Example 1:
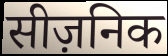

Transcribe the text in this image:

सीज़निक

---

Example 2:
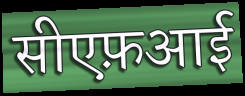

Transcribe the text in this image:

सीएफ़आई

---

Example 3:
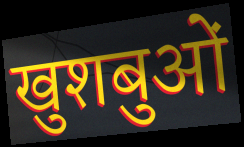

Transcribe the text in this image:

खुशबुओं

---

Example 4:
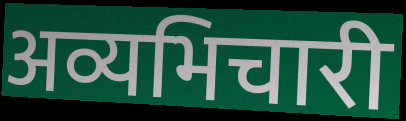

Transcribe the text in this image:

अव्यभिचारी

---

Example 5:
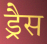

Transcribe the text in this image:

ड्रैस